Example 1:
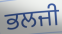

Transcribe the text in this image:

ਭਲਜੀ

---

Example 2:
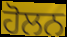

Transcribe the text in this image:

ਹੋਲਨ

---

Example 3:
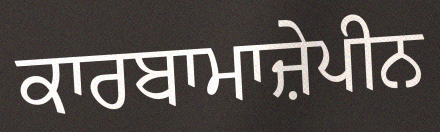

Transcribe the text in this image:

ਕਾਰਬਾਮਾਜ਼ੇਪੀਨ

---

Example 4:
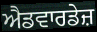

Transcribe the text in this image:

ਐਡਵਾਰਡੇਜ਼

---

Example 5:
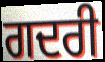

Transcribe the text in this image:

ਗਦਰੀ